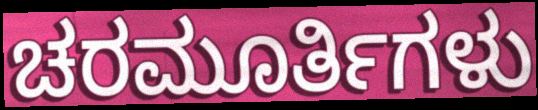
ಚರಮೂರ್ತಿಗಳು